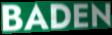
BADEN